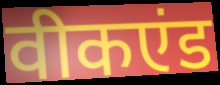
वीकएंड